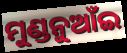
ମୁଣ୍ଡନୁଆଁଇ